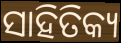
ସାହିତିକ୍ୟ